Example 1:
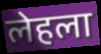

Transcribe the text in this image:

लेहला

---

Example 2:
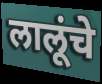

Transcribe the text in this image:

लालूंचे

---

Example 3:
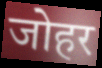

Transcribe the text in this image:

जोहर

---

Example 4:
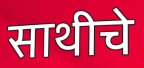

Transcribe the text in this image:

साथीचे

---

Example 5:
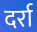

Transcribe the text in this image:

दर्रा